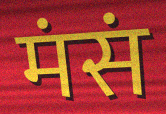
मंसं